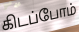
கிடப்போம்